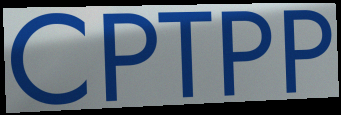
CPTPP